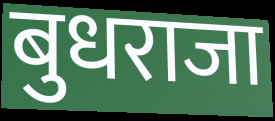
बुधराजा